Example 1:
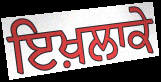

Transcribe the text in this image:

ਇਖ਼ਲਾਕੇ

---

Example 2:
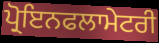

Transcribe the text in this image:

ਪ੍ਰੋਇਨਫਲਾਮੇਟਰੀ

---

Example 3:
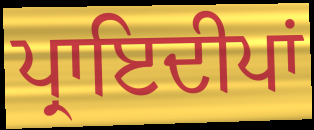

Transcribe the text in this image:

ਪ੍ਰਾਇਦੀਪਾਂ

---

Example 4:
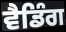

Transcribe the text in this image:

ਵੈਡਿੰਗ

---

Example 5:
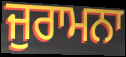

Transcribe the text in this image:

ਜੁਰਾਮਨਾ